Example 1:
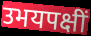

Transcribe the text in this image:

उभयपक्षीं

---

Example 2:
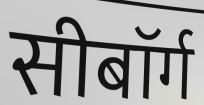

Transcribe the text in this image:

सीबॉर्ग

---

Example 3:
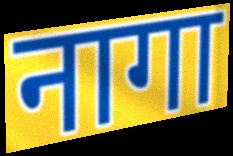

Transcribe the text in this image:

नागा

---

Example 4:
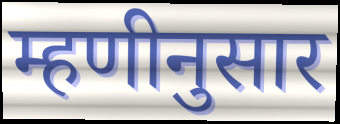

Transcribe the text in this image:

म्हणीनुसार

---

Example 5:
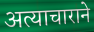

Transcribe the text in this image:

अत्याचाराने